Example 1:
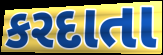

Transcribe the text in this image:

કરદાતા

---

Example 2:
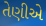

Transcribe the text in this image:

તેણીએ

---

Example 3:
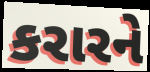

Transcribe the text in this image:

કરારને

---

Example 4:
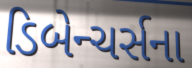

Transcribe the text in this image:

ડિબેન્ચર્સના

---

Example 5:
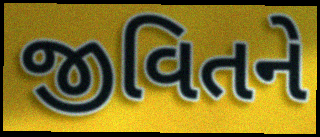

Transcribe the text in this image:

જીવિતને